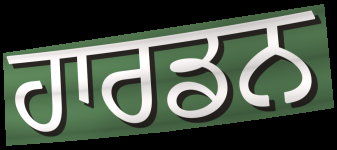
ਹਾਰਡਨ